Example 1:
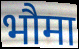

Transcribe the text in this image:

भौमा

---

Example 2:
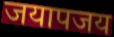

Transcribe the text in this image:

जयापजय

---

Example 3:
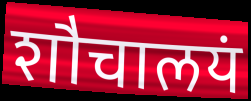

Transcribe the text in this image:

शौचालयं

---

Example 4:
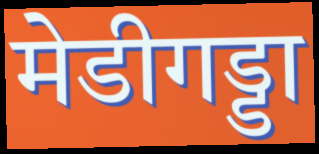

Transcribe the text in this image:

मेडीगड्डा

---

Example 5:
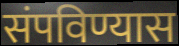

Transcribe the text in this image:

संपविण्यास